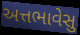
અત્તભાવેસુ